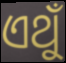
ଏଥୁଁ